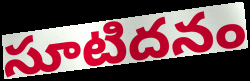
సూటిదనం